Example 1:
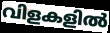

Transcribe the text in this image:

വിളകളിൽ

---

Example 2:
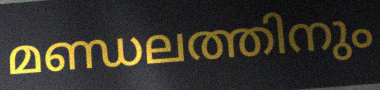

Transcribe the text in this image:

മണ്ഡലത്തിനും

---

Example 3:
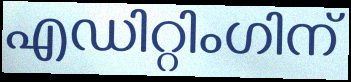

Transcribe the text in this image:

എഡിറ്റിംഗിന്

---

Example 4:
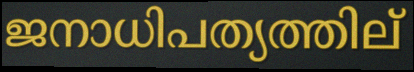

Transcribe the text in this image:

ജനാധിപത്യത്തില്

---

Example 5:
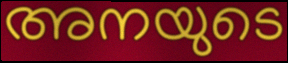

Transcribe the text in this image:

അനയുടെ